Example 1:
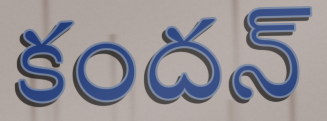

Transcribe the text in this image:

కందన్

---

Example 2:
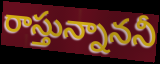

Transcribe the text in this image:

రాస్తున్నాననీ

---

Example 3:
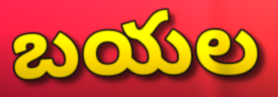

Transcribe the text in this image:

బయల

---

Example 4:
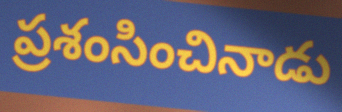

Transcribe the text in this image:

ప్రశంసించినాడు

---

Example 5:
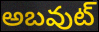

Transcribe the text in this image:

అబవుట్